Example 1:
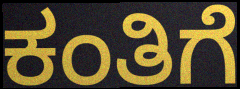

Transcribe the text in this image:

ಕಂತಿಗೆ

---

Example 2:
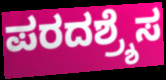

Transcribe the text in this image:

ಪರದಶ್ರ್ಶೆಸ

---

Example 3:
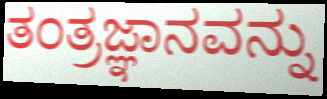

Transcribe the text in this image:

ತಂತ್ರಜ್ಞಾನವನ್ನು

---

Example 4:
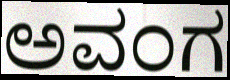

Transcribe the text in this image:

ಅವಂಗ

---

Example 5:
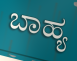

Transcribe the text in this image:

ಬಾಹ್ಯ